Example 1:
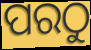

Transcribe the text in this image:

ପରଠୁ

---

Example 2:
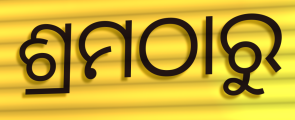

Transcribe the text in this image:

ଶ୍ରମଠାରୁ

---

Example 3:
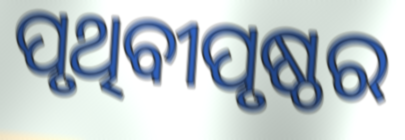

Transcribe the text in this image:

ପୃଥିବୀପୃଷ୍ଠର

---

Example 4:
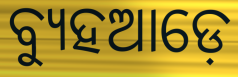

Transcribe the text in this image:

ବ୍ୟୁହଆଡ଼େ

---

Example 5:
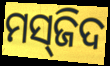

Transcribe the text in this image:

ମସ୍‌ଜିଦ